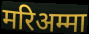
मरिअम्मा